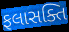
ફલાસક્તિ